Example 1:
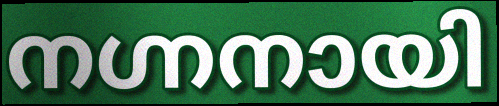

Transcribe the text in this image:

നഗ്നനായി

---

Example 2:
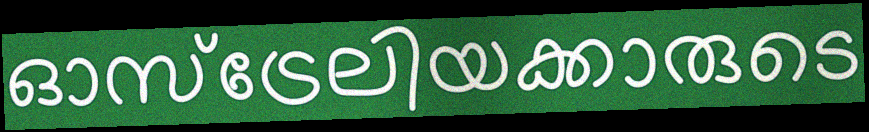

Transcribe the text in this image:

ഓസ്ട്രേലിയക്കാരുടെ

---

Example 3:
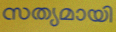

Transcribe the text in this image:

സത്യമായി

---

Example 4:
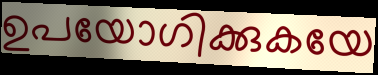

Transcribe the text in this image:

ഉപയോഗിക്കുകയേ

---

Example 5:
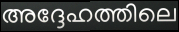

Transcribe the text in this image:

അദ്ദേഹത്തിലെ